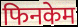
फिनकेम